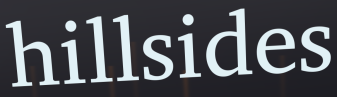
hillsides